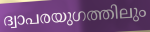
ദ്വാപരയുഗത്തിലും